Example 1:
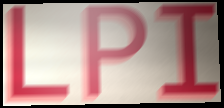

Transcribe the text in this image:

LPI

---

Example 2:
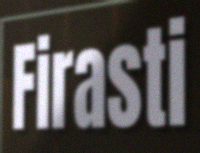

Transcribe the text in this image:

Firasti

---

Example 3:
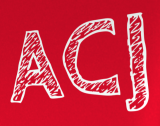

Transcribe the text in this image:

ACJ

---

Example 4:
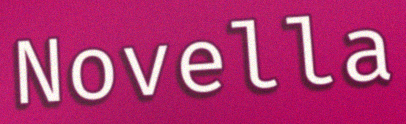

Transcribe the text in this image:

Novella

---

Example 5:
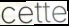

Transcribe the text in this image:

cette